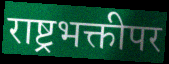
राष्ट्रभक्तीपर